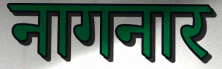
नागनार